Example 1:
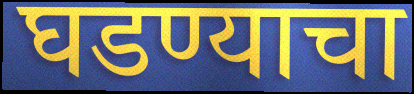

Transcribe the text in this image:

घडण्याचा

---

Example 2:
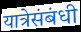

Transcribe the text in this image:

यात्रेसंबंधी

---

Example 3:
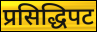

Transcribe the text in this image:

प्रसिद्धिपट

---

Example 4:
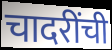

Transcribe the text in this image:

चादरींची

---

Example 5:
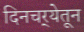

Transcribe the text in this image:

दिनचर्येतून